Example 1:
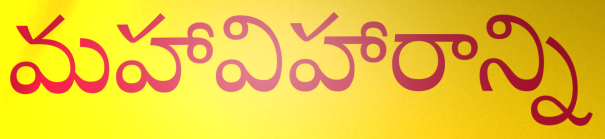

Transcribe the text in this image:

మహావిహారాన్ని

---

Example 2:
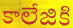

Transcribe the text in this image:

కాలేజికి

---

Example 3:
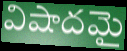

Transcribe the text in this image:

విషాదమై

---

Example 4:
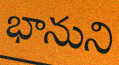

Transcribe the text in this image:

భానుని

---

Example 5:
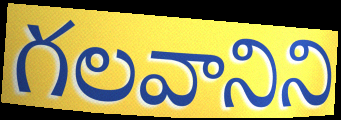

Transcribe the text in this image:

గలవానిని